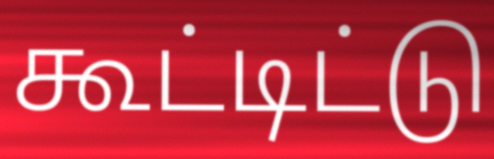
கூட்டிட்டு